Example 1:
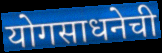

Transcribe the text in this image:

योगसाधनेची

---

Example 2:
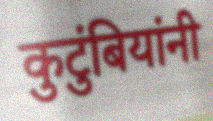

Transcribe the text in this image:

कुटुंबियांनी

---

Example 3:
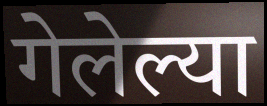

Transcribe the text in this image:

गेलेल्या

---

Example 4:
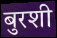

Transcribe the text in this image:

बुरशी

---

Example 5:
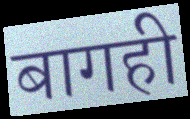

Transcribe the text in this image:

बागही